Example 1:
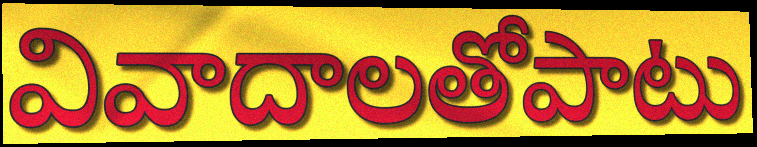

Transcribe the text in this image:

వివాదాలతోపాటు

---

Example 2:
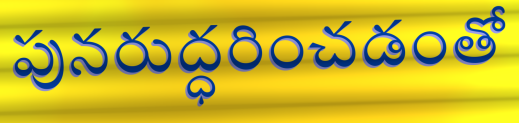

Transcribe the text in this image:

పునరుద్ధరించడంతో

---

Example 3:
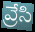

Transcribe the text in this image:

వ్రేసి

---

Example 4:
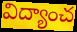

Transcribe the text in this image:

విద్యాంచ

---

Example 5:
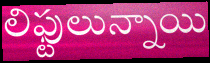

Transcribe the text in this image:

లిఫ్టులున్నాయి